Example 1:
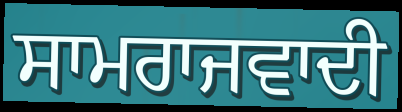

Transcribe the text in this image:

ਸਾਮਰਾਜਵਾਦੀ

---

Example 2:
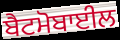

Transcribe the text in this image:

ਬੈਟਮੋਬਾਈਲ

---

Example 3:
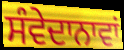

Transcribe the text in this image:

ਸੰਵੇਦਾਨਾਵਾਂ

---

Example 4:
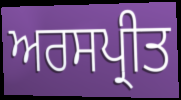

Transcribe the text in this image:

ਅਰਸਪ੍ਰੀਤ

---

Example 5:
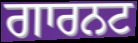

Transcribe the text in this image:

ਗਾਰਨਟ